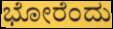
ಭೋರೆಂದು